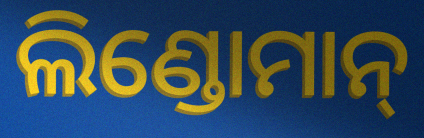
ଲିଣ୍ଡୋମାନ୍